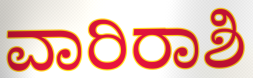
ವಾರಿರಾಶಿ